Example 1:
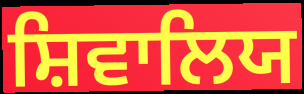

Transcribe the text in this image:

ਸ਼ਿਵਾਲਿਯ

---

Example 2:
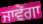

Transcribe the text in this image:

ਜਾਵੇਂਗਾ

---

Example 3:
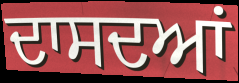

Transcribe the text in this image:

ਦਾਸਦਆਂ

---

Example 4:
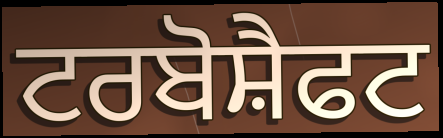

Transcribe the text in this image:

ਟਰਬੋਸ਼ੈਫਟ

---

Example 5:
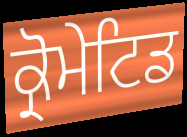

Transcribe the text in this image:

ਕ੍ਰੋਮੇਟਿਡ